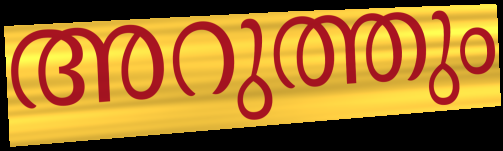
അറുത്തും